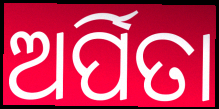
ଅର୍ପିତା